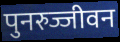
पुनरुज्जीवन